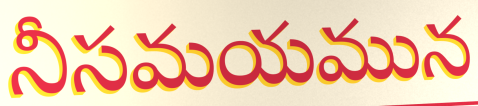
నీసమయమున